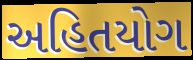
અહિતયોગ